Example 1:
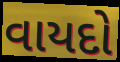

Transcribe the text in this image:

વાયદો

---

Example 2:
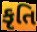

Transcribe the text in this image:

કૃતિ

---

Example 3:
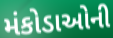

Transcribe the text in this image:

મંકોડાઓની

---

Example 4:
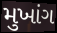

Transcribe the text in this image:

મુખાંગ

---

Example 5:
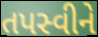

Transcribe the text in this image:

તપસ્વીને